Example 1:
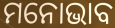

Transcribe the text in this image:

ମନୋଭାବ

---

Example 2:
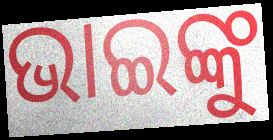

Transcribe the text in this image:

ଭାଇଙ୍କୁ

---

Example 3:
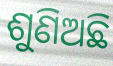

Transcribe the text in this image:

ଶୁଣିଅଛି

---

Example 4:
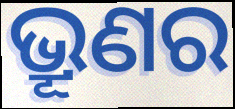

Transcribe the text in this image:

ଭ୍ରୂଣର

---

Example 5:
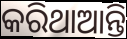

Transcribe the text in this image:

କରିଥାଆନ୍ତି